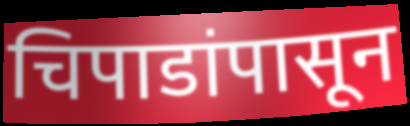
चिपाडांपासून